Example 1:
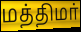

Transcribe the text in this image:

மத்திமர்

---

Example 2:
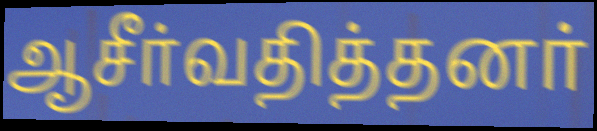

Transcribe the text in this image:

ஆசீர்வதித்தனர்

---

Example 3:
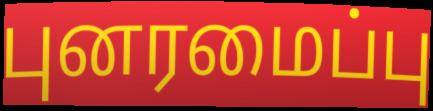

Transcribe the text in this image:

புனரமைப்பு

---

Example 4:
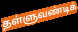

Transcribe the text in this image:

தள்ளுவண்டிக்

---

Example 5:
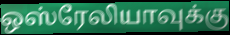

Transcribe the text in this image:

ஒஸ்ரேலியாவுக்கு